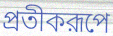
প্রতীকরূপে